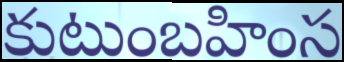
కుటుంబహింస